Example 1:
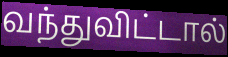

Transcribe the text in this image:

வந்துவிட்டால்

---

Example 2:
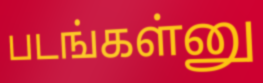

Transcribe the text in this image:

படங்கள்னு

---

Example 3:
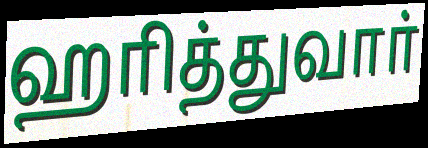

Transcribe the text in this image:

ஹரித்துவார்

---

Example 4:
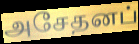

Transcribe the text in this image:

அசேதனப்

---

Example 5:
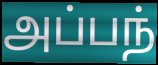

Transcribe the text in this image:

அப்பந்